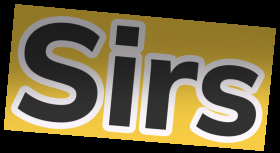
Sirs